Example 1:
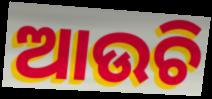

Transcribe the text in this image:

ଆଉଚି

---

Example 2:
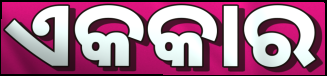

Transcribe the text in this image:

ଏକକାର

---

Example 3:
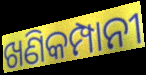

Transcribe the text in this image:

ଖଣିକମ୍ପାନୀ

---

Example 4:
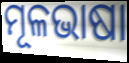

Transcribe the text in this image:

ମୂଳଭାଷା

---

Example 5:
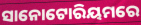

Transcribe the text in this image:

ସାନୋଟୋରିୟମରେ